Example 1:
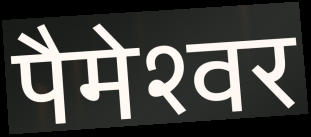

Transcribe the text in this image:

पैमेश्वर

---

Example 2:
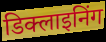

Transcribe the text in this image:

डिक्लाइनिंग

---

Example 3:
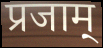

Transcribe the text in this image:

प्रजाम्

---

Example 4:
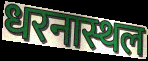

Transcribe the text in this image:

धरनास्थल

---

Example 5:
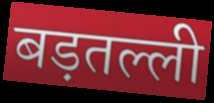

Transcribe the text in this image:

बड़तल्ली